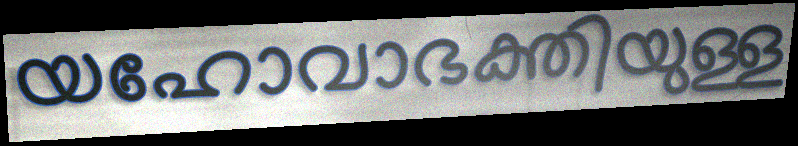
യഹോവാഭക്തിയുള്ള